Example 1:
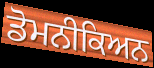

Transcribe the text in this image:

ਡੋਮਨੀਕਿਅਨ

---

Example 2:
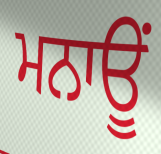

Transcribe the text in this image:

ਮਨਾਊਂ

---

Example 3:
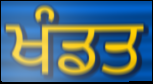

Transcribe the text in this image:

ਖੰਡਤ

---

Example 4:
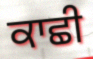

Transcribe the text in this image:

ਕਾਛੀ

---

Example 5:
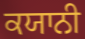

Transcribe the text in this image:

ਕਯਾਨੀ